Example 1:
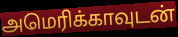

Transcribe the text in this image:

அமெரிக்காவுடன்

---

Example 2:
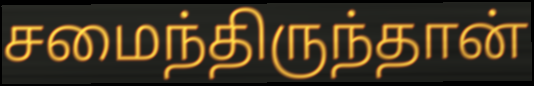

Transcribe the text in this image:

சமைந்திருந்தான்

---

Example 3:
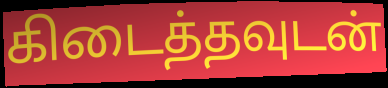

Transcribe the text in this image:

கிடைத்தவுடன்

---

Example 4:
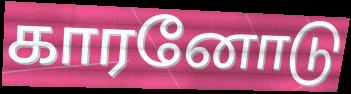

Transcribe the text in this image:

காரனோடு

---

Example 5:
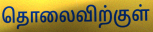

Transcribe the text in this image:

தொலைவிற்குள்